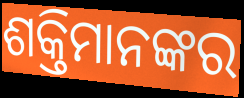
ଶକ୍ତିମାନଙ୍କର